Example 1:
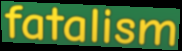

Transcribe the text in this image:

fatalism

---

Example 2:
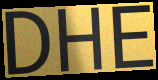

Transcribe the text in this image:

DHE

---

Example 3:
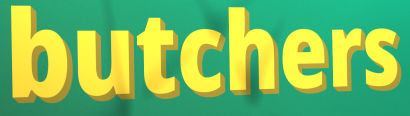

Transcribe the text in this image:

butchers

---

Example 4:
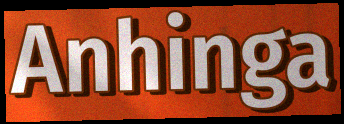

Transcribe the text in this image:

Anhinga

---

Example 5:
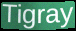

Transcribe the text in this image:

Tigray